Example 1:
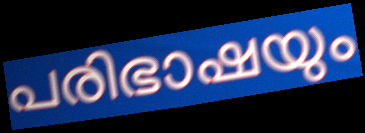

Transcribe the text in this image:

പരിഭാഷയും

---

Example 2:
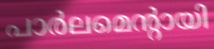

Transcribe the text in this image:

പാർലമെന്റായി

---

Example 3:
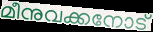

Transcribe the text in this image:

മീനുവക്കനോട്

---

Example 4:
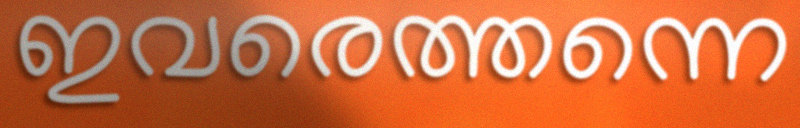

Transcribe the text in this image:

ഇവരെത്തന്നെ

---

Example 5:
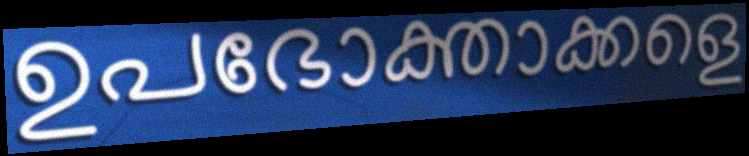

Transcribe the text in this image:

ഉപഭോക്താക്കളെ